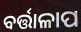
ବର୍ତ୍ତାଳାପ